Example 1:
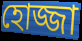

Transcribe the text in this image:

হোজ্জা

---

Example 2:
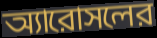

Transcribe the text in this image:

অ্যারোসলের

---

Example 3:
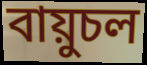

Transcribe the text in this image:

বায়ুচল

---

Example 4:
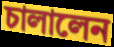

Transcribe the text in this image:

চালালেন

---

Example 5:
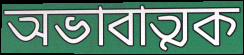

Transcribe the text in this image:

অভাবাত্মক